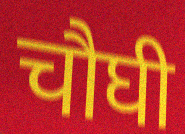
चौघी